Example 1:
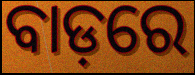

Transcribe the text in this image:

ବାଡ଼ରେ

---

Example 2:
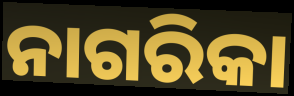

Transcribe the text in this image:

ନାଗରିକା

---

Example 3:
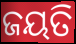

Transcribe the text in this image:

ଜୟତି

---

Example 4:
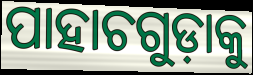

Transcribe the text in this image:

ପାହାଚଗୁଡ଼ାକୁ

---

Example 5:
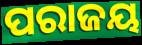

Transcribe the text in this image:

ପରାଜୟ